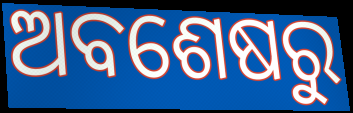
ଅବଶେଷରୁ